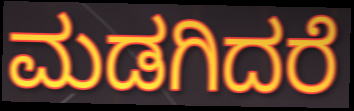
ಮಡಗಿದರೆ